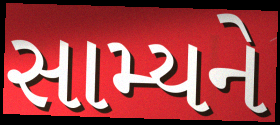
સામ્યને